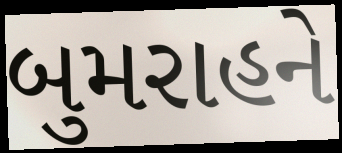
બુમરાહને